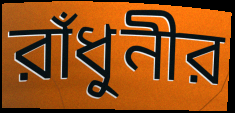
রাঁধুনীর